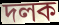
দলক